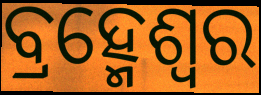
ବ୍ରହ୍ମେଶ୍ଵର